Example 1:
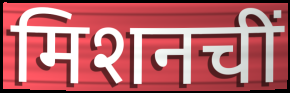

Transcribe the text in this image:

मिशनचीं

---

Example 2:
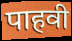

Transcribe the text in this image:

पाहवी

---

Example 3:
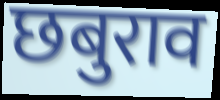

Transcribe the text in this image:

छबुराव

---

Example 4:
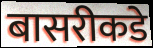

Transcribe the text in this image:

बासरीकडे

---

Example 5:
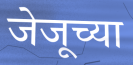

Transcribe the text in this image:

जेजूच्या